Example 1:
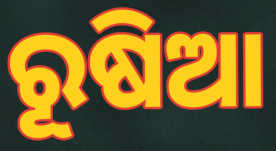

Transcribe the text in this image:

ରୂଷିଆ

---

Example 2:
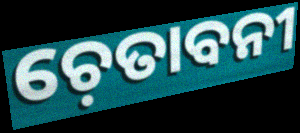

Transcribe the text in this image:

ଚ଼େତାବନୀ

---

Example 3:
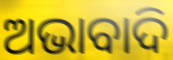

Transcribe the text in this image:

ଅଭାବାଦି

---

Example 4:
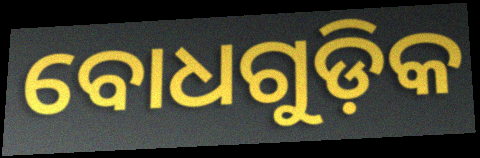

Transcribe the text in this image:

ବୋଧଗୁଡ଼ିକ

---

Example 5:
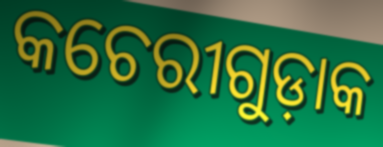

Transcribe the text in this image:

କଚେରୀଗୁଡ଼ାକ